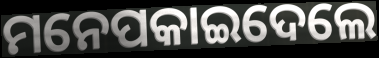
ମନେପକାଇଦେଲେ